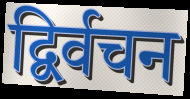
द्विर्वचन